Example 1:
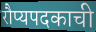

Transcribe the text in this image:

रौप्यपदकाची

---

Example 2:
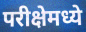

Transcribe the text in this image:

परीक्षेमध्ये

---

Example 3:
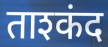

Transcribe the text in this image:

ताश्कंद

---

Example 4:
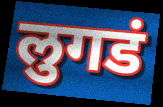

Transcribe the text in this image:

लुगडं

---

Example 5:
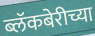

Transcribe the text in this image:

ब्लॅकबेरीच्या